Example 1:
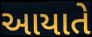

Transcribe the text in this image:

આયાતે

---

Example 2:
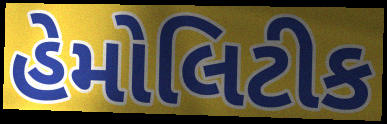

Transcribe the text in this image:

હેમોલિટીક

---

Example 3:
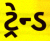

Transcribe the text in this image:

ટ્રેન્ડ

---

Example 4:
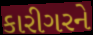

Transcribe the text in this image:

કારીગરને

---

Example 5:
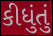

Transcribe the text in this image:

કીધુંતું